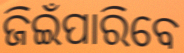
ଜିଇଁପାରିବେ